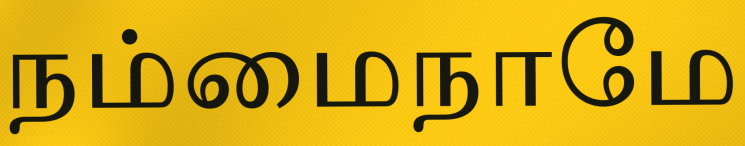
நம்மைநாமே